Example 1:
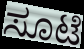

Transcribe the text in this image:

ಸೂಟೆ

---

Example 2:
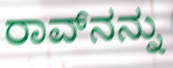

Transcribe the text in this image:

ರಾವ್‌ನನ್ನು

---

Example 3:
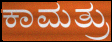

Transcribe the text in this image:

ಕಾಮತ್ರು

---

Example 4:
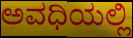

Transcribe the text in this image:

ಅವಧಿಯಲ್ಲಿ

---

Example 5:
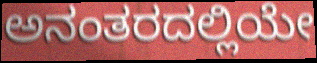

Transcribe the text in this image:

ಅನಂತರದಲ್ಲಿಯೇ